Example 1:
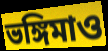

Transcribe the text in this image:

ভঙ্গিমাও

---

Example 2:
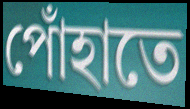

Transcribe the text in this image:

পোঁহাতে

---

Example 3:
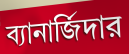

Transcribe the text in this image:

ব্যানার্জিদার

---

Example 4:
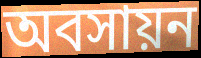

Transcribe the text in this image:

অবসায়ন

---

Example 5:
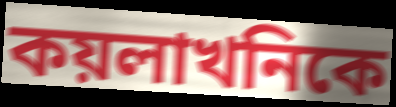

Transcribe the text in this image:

কয়লাখনিকে